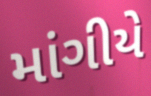
માંગીયે